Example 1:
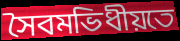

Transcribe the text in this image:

সৈবমভিধীয়তে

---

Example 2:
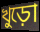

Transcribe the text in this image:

খুড়ো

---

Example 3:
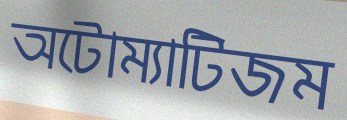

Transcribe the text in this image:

অটোম্যাটিজম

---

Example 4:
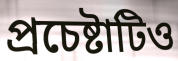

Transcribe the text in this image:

প্রচেষ্টাটিও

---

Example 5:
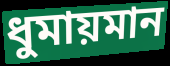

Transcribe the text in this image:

ধুমায়মান